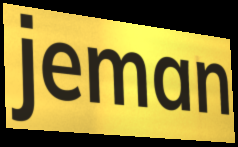
jeman